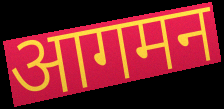
आगमन